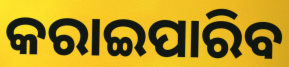
କରାଇପାରିବ